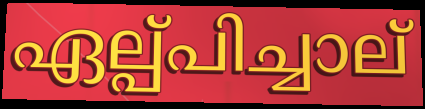
ഏല്പ്പിച്ചാല്